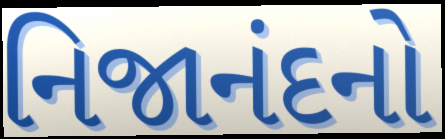
નિજાનંદનો